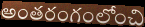
అంతరంగంలోంచి